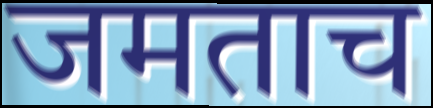
जमताच